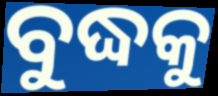
ବୁଦ୍ଧକୁ